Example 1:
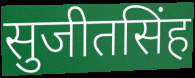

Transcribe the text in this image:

सुजीतसिंह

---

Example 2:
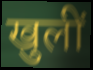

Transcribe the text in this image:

खुलीं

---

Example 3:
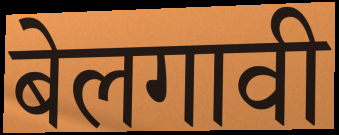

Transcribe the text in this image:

बेलगावी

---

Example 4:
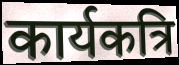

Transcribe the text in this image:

कार्यकत्रि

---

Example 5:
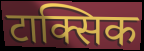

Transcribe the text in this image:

टाक्सिक